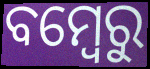
ବମ୍ବେରୁ